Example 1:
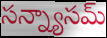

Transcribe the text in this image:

సన్న్యాసమ్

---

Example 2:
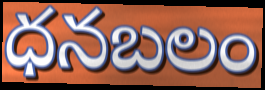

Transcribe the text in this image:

ధనబలం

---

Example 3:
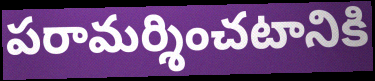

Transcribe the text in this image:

పరామర్శించటానికి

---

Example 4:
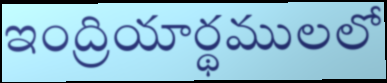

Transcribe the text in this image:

ఇంద్రియార్థములలో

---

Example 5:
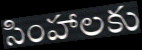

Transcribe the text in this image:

సింహాలకు